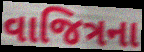
વાજિત્રના